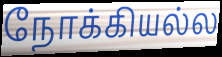
நோக்கியல்ல